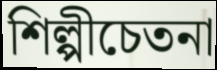
শিল্পীচেতনা